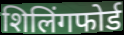
शिलिंगफोर्ड